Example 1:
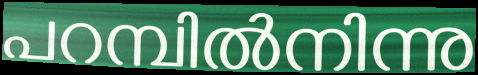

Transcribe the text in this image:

പറമ്പിൽനിന്നു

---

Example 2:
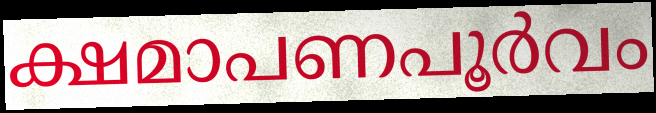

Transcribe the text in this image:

ക്ഷമാപണപൂർവം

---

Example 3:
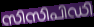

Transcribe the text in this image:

സിസിപിഡി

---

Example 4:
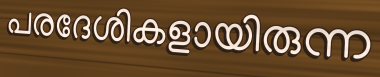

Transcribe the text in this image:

പരദേശികളായിരുന്ന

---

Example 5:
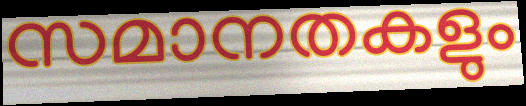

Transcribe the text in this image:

സമാനതകളും